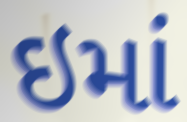
ઇમાં